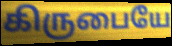
கிருபையே